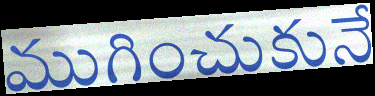
ముగించుకునే